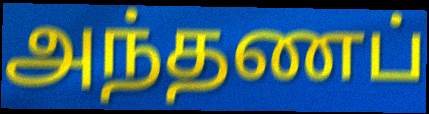
அந்தணப்